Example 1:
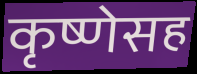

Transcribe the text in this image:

कृष्णेसह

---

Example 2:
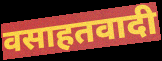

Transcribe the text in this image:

वसाहतवादी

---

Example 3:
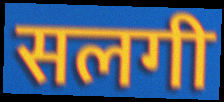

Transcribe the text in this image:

सलगी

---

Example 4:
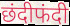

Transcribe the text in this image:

छंदीफंदी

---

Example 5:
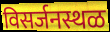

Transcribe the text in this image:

विसर्जनस्थळ